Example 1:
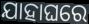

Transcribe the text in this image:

ଯାହାଘରେ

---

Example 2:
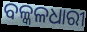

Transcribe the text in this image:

ବଳ୍କଳଧାରୀ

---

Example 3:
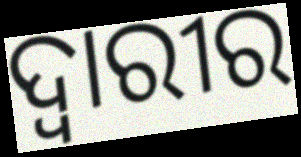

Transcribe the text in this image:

ଦ୍ୱାରୀର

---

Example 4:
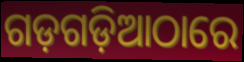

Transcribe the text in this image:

ଗଡ଼ଗଡ଼ିଆଠାରେ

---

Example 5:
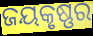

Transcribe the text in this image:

ଜୟକୃଷ୍ଣର